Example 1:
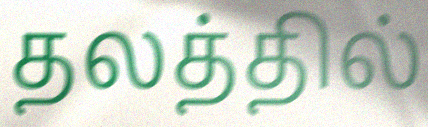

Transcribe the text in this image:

தலத்தில்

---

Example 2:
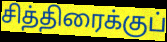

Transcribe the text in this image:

சித்திரைக்குப்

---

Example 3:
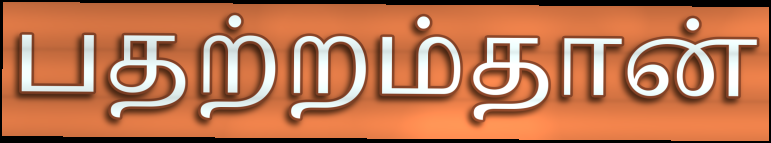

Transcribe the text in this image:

பதற்றம்தான்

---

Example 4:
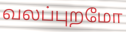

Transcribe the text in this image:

வலப்புறமோ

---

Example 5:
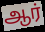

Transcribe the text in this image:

ஆர்